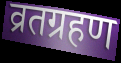
व्रतग्रहण